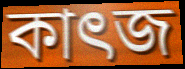
কাৎজ